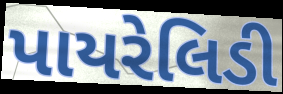
પાયરેલિડી